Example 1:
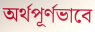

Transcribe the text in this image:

অর্থপূর্ণভাবে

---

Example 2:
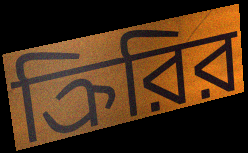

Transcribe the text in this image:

ক্রিরির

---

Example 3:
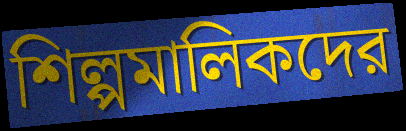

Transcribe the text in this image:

শিল্পমালিকদের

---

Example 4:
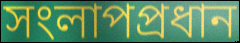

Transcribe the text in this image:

সংলাপপ্রধান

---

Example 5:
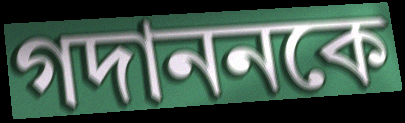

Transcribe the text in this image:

গদাননকে